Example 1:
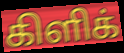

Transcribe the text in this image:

கிளிக்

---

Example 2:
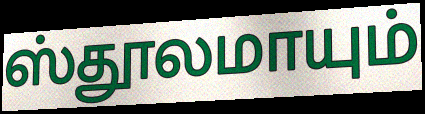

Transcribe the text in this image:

ஸ்தூலமாயும்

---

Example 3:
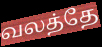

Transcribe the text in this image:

வலத்தே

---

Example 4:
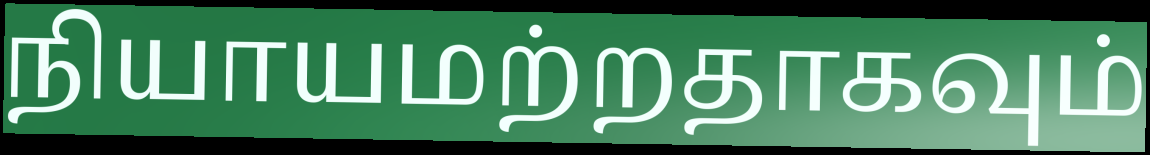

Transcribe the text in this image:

நியாயமற்றதாகவும்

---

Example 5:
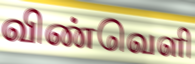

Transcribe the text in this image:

விண்வெளி